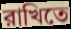
রাখিতে